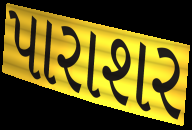
પારાશર